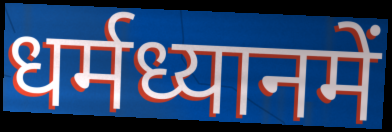
धर्मध्यानमें